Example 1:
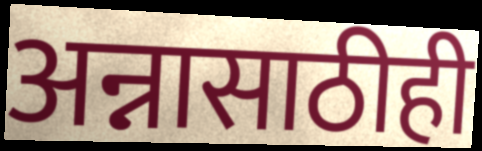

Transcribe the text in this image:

अन्नासाठीही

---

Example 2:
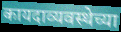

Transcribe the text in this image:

कायदाव्यवस्थेच्या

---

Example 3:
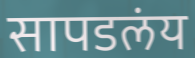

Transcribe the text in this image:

सापडलंय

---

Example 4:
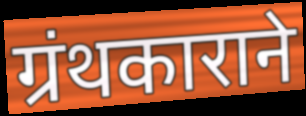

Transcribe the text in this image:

ग्रंथकाराने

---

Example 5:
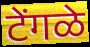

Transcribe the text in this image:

टेंगळे